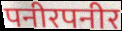
पनीरपनीर